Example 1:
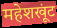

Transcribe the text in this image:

महेशखूंट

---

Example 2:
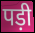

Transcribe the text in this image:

पड़ी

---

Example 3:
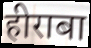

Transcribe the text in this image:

हीराबा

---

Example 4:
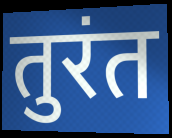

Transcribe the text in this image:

तुरंत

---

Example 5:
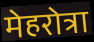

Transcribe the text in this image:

मेहरोत्रा